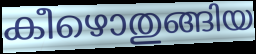
കീഴൊതുങ്ങിയ